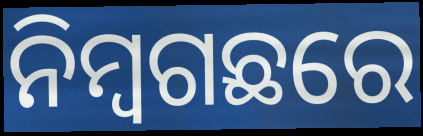
ନିମ୍ବଗଛରେ